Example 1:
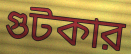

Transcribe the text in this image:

গুটকার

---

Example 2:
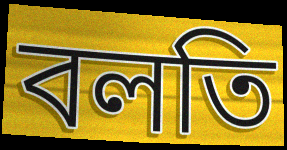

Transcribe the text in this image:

বলতি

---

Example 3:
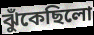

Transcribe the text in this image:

ঝুঁকেছিলো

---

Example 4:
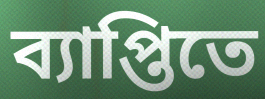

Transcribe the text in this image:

ব্যাপ্তিতে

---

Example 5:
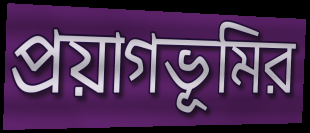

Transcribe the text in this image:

প্রয়াগভূমির